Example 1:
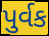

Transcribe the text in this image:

પુર્વક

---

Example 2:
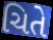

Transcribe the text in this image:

ચિતે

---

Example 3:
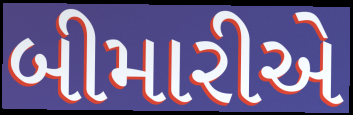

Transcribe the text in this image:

બીમારીએ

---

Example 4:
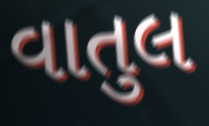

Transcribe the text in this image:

વાતુલ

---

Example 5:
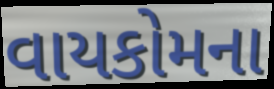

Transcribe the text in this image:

વાયકોમના